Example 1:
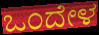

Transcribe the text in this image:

ಒಂದೇಳ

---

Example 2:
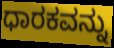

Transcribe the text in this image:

ಧಾರಕವನ್ನು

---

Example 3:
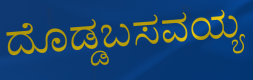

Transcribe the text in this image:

ದೊಡ್ಡಬಸವಯ್ಯ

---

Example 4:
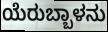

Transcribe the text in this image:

ಯೆರುಬ್ಬಾಳನು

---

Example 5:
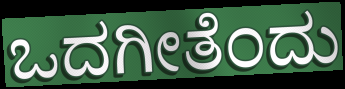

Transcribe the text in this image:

ಒದಗೀತೆಂದು